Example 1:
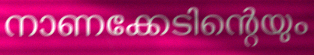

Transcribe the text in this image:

നാണക്കേടിന്റെയും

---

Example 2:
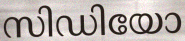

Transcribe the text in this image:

സിഡിയോ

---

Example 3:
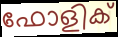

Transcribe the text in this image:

ഫോളിക്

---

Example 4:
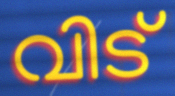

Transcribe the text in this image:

വിട്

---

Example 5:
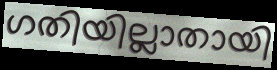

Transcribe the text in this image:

ഗതിയില്ലാതായി